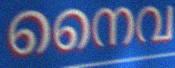
നൈവ